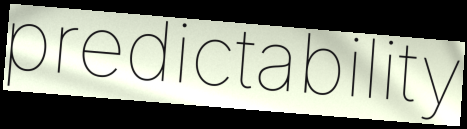
predictability